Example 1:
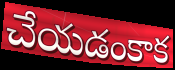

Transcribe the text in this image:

చేయడంకాక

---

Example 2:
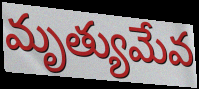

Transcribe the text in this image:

మృత్యుమేవ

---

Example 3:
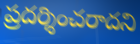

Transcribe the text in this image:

ప్రదర్శించరాదని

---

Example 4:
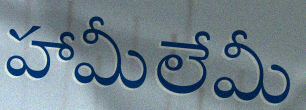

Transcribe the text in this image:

హామీలేమీ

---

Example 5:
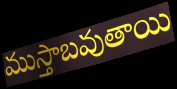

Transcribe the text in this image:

ముస్తాబవుతాయి